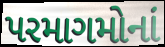
પરમાગમોનાં